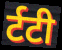
र्टटी